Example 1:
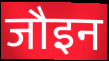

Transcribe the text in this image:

जौइन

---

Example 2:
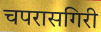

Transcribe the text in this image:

चपरासगिरी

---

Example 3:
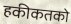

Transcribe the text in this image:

हकीकतको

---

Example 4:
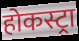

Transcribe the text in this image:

होकस्ट्रा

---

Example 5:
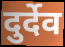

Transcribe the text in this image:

दुर्देव